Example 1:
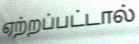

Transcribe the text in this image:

ஏற்றப்பட்டால்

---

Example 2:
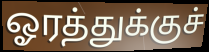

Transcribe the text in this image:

ஓரத்துக்குச்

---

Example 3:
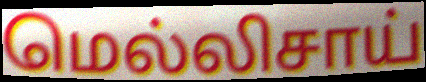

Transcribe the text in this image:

மெல்லிசாய்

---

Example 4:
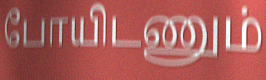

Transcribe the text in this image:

போயிடணும்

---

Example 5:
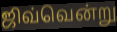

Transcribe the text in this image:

ஜிவ்வென்று